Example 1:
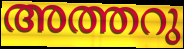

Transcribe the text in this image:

അത്തറു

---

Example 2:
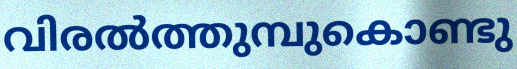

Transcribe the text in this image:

വിരൽത്തുമ്പുകൊണ്ടു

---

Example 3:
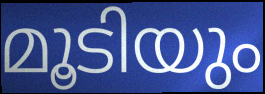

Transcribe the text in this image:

മൂടിയും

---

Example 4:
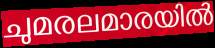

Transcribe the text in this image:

ചുമരലമാരയിൽ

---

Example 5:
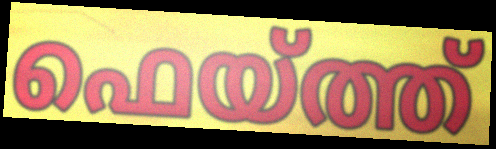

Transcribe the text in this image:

ഫെയ്ത്ത്